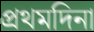
প্ৰথমদিনা